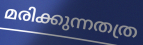
മരിക്കുന്നതത്ര